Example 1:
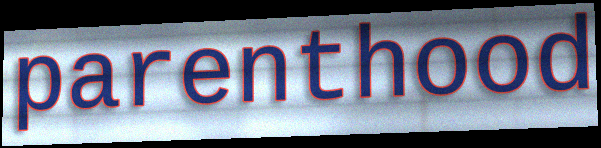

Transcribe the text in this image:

parenthood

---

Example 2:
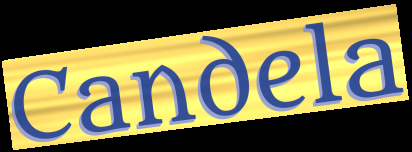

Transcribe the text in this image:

Candela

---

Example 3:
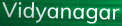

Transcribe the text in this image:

Vidyanagar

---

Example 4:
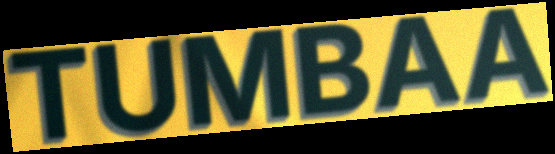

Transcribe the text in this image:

TUMBAA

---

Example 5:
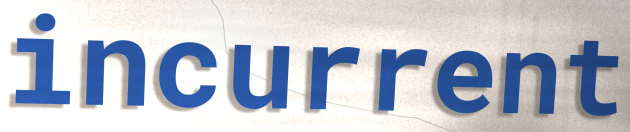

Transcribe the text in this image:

incurrent